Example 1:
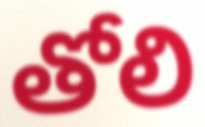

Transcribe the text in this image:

తోలి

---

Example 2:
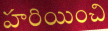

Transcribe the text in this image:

హరియించి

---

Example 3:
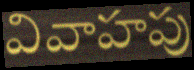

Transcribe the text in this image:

వివాహపు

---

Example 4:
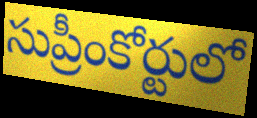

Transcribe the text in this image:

సుప్రీంకోర్టులో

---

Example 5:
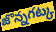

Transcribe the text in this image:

జొన్నగట్క